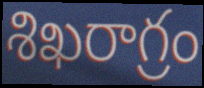
శిఖరాగ్రం